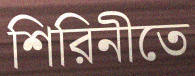
শিরিনীতে